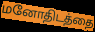
மனோதிடத்தை